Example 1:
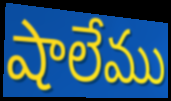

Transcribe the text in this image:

షాలేము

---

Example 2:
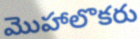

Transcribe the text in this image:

మొహాలొకరు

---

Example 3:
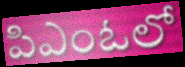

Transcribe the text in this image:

పిఎంఓలో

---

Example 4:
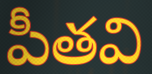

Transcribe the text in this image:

పీతవి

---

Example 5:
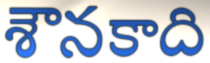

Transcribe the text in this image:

శౌనకాది